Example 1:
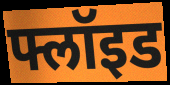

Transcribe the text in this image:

फ्लॉइड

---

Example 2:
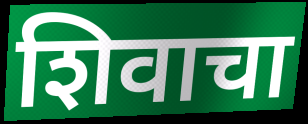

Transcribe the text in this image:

शिवाचा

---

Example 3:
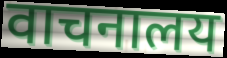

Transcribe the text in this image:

वाचनालय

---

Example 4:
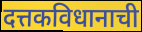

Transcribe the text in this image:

दत्तकविधानाची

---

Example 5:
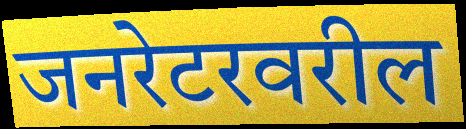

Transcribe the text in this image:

जनरेटरवरील